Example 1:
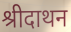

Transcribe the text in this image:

श्रीदाथन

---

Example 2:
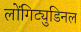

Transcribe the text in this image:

लोंगिट्युडिनल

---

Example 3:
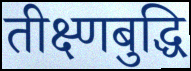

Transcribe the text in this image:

तीक्ष्णबुद्धि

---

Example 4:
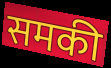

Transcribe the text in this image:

समकी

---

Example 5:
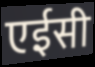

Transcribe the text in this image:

एईसी